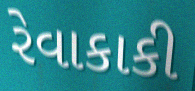
રેવાકાકી